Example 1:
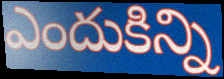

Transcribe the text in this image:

ఎందుకిన్ని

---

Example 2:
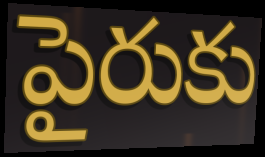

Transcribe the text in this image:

పైరుకు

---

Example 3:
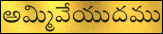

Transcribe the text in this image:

అమ్మివేయుదము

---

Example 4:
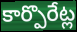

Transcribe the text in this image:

కార్పొరేట్ల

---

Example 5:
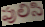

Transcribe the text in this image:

పులిసి